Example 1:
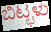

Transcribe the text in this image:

ಬಿಟ್ಟಳು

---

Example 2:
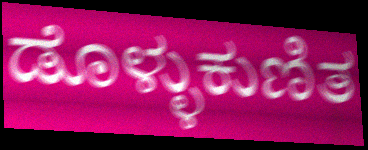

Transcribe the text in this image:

ಡೊಳ್ಳುಕುಣಿತ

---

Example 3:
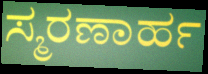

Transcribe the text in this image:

ಸ್ಮರಣಾರ್ಹ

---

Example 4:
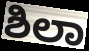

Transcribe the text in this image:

ಶಿಲಾ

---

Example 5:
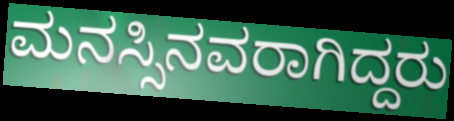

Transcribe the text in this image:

ಮನಸ್ಸಿನವರಾಗಿದ್ದರು